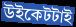
উইকেটটাই